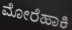
ಮೋರೆಹಾಕಿ